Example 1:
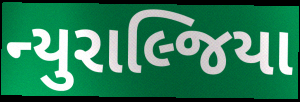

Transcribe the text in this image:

ન્યુરાલ્જિયા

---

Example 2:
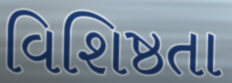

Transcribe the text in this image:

વિશિષ્ઠતા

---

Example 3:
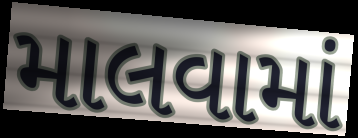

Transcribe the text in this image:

માલવામાં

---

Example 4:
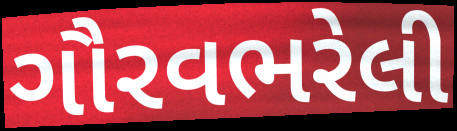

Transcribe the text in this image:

ગૌરવભરેલી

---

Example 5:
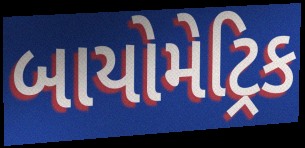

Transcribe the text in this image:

બાયોમેટ્રિક